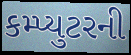
કમ્પ્યુટરની